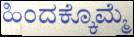
ಹಿಂದಕ್ಕೊಮ್ಮೆ